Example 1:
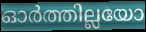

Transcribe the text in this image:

ഓർത്തില്ലയോ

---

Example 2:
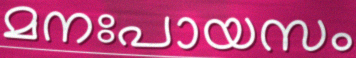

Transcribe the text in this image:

മനഃപായസം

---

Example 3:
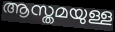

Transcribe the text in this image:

ആസ്തമയുള്ള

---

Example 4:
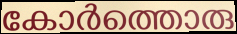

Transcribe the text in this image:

കോർത്തൊരു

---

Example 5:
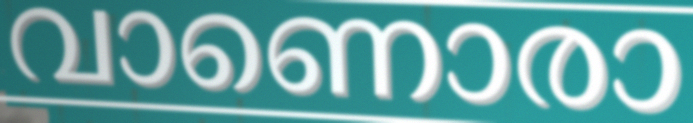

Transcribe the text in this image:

വാണൊരാ